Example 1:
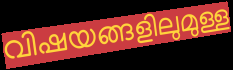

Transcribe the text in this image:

വിഷയങ്ങളിലുമുള്ള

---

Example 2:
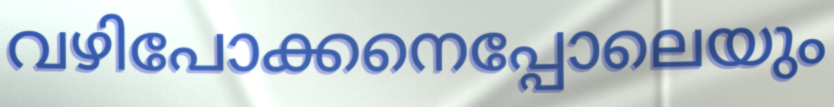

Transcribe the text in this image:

വഴിപോക്കനെപ്പോലെയും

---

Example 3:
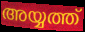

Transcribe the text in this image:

അയ്യത്ത്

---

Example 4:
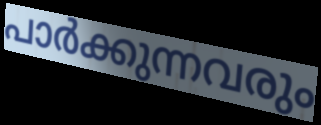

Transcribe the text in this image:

പാർക്കുന്നവരും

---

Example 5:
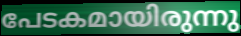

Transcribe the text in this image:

പേടകമായിരുന്നു